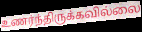
உணர்ந்திருக்கவில்லை